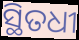
ସ୍ଥିତଧୀ